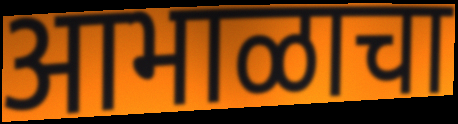
आभाळाचा